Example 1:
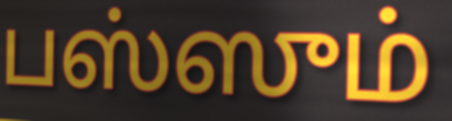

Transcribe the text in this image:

பஸ்ஸும்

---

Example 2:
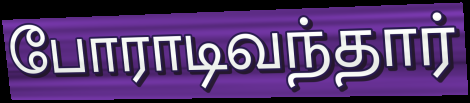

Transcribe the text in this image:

போராடிவந்தார்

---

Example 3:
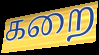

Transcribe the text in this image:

கறை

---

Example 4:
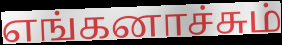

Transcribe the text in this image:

எங்கனாச்சும்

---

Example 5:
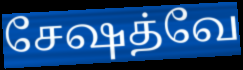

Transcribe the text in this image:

சேஷத்வே